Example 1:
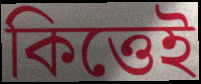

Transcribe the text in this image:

কিত্তেই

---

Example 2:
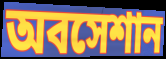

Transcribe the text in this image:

অবসেশান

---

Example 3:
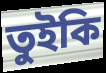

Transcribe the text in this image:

তুইকি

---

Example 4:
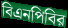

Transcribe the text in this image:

বিএনপিবির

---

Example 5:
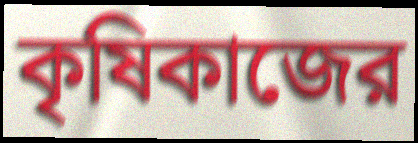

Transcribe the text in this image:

কৃষিকাজের